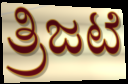
ತ್ರಿಜಟೆ